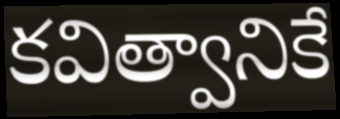
కవిత్వానికే